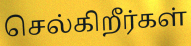
செல்கிறீர்கள்